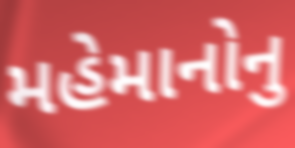
મહેમાનોનુ